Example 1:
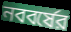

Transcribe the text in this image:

নববর্ষের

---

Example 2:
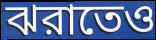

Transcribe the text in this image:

ঝরাতেও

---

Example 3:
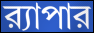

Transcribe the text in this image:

র‍্যাপার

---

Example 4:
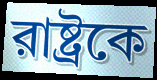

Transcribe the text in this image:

রাষ্ট্রকে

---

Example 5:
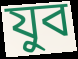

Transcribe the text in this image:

যুব